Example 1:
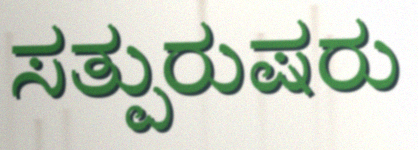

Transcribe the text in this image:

ಸತ್ಪುರುಷರು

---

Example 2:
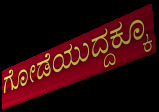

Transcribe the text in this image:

ಗೋಡೆಯುದ್ದಕ್ಕೂ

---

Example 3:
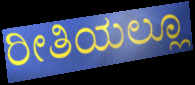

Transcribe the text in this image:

ರೀತಿಯಲ್ಲೂ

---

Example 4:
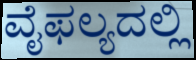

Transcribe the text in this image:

ವೈಫಲ್ಯದಲ್ಲಿ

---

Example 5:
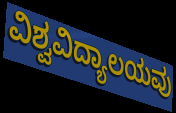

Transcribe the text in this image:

ವಿಶ್ವವಿದ್ಯಾಲಯವು